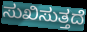
ಸುಖಿಸುತ್ತದೆ